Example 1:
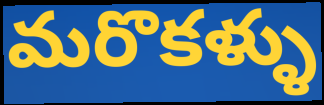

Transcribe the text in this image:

మరొకళ్ళు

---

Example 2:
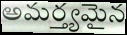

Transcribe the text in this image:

అమర్త్యమైన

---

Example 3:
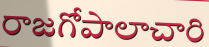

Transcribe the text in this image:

రాజగోపాలాచారి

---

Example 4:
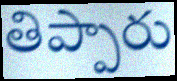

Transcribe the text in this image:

తిప్పారు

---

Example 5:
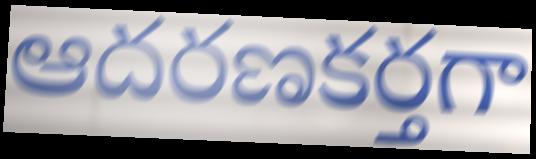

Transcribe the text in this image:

ఆదరణకర్తగా